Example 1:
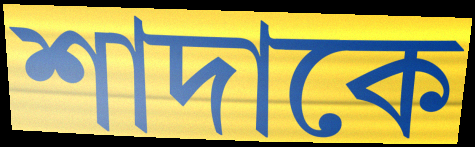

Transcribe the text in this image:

শাদাকে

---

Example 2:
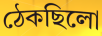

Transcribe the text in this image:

ঠেকছিলো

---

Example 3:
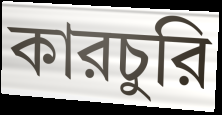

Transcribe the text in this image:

কারচুরি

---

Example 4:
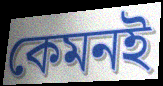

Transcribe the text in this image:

কেমনই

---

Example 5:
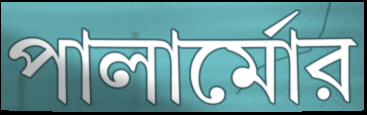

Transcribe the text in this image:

পালার্মোর